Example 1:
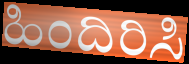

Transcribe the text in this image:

ಹಿಂದಿರಿಸಿ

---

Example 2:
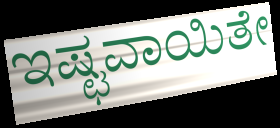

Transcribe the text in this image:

ಇಷ್ಟವಾಯಿತೇ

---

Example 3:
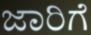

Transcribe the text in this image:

ಜಾರಿಗೆ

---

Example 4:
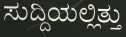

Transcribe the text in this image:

ಸುದ್ದಿಯಲ್ಲಿತ್ತು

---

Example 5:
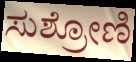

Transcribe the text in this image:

ಸುಶ್ರೋಣಿ